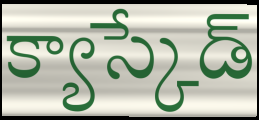
క్యాస్కేడ్